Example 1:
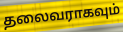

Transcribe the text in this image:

தலைவராகவும்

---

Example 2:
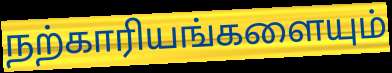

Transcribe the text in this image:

நற்காரியங்களையும்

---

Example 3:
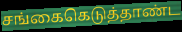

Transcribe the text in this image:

சங்கைகெடுத்தாண்ட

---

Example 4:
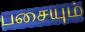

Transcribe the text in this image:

பசையும்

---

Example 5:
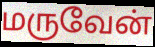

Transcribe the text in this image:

மருவேன்